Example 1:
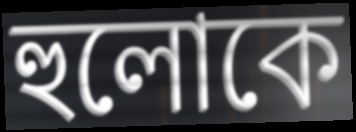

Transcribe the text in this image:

হুলোকে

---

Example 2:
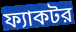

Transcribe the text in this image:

ফ্যাকটর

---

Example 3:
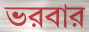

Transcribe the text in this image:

ভরবার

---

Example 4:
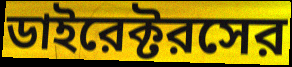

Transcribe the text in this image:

ডাইরেক্টরসের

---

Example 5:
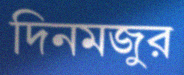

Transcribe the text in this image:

দিনমজুর